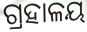
ଗ୍ରହାଳୟ